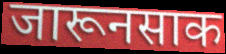
जारूनसाक